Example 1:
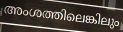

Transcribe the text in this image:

അംശത്തിലെങ്കിലും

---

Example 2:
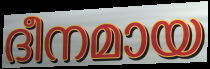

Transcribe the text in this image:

ദീനമായ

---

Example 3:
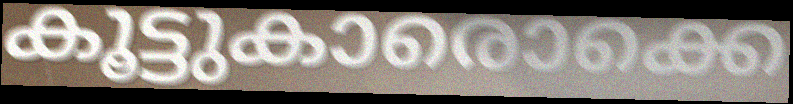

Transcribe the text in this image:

കൂട്ടുകാരൊക്കെ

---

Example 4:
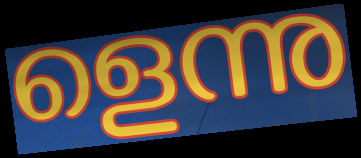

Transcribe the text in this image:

ളെന്നു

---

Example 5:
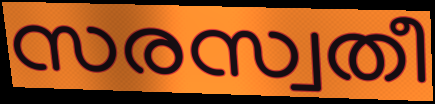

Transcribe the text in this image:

സരസ്വതീ